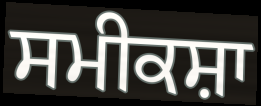
ਸਮੀਕਸ਼ਾ